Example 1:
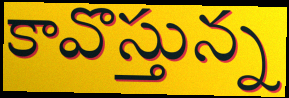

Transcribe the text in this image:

కావొస్తున్న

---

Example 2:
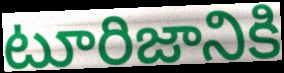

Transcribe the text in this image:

టూరిజానికి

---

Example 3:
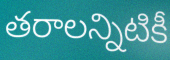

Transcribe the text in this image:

తరాలన్నిటికీ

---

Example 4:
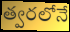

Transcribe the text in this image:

త్వరలోనే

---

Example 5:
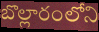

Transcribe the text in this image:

బొల్లారంలోని